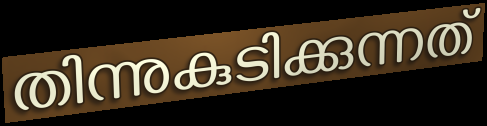
തിന്നുകുടിക്കുന്നത്